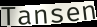
Tansen